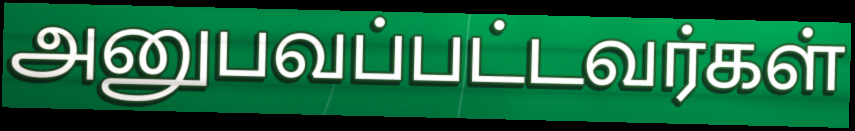
அனுபவப்பட்டவர்கள்